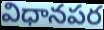
విధానపర